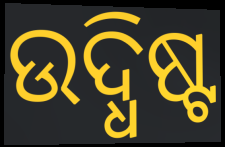
ଉଦ୍ଧିଷ୍ଟ